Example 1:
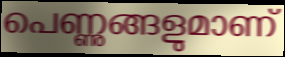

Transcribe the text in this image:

പെണ്ണുങ്ങളുമാണ്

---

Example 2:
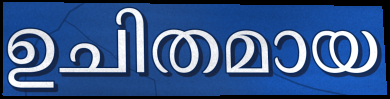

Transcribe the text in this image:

ഉചിതമായ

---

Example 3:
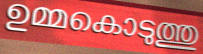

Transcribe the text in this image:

ഉമ്മകൊടുത്തു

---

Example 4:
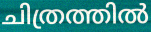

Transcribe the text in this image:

ചിത്രത്തിൽ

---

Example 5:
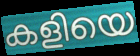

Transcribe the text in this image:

കളിയെ